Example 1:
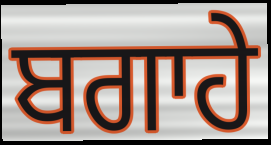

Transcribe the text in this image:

ਬਗਾਹੇ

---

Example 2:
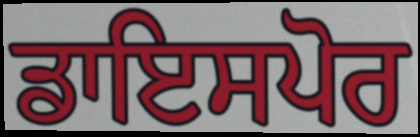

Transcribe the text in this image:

ਡਾਇਸਪੋਰ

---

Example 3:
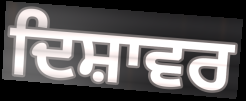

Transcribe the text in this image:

ਦਿਸ਼ਾਵਰ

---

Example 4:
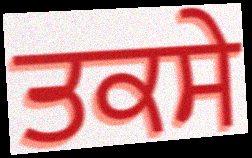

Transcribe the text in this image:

ਤਕਸੇ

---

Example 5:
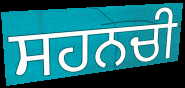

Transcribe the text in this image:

ਸਹਨਚੀ